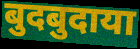
बुदबुदाया